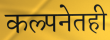
कल्पनेतही